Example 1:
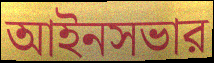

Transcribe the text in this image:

আইনসভার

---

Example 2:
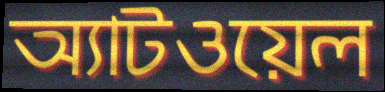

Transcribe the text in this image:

অ্যাটওয়েল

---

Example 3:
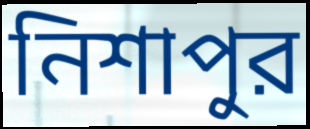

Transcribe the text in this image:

নিশাপুর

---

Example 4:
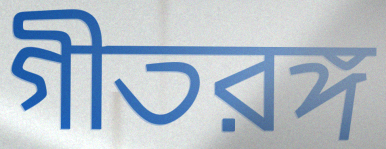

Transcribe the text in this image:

গীতরঙ্গ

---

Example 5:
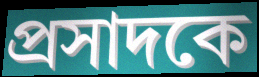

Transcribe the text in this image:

প্রসাদকে